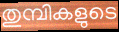
തുമ്പികളുടെ